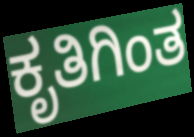
ಕೃತಿಗಿಂತ